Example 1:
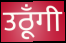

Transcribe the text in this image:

उठूँगी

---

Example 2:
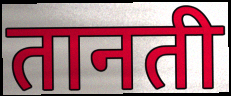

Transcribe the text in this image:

तानती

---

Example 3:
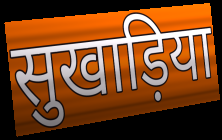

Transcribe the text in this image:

सुखाड़िया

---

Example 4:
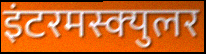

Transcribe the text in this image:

इंटरमस्क्युलर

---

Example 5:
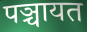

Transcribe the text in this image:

पञ्चायत